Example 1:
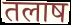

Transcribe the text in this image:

तलाष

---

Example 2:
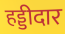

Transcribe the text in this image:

हड्डीदार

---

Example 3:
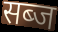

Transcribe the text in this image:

सब्ज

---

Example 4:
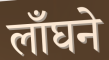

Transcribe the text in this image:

लाँघने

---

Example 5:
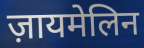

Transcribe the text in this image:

ज़ायमेलिन